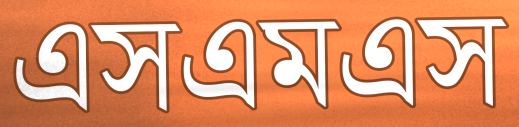
এসএমএস